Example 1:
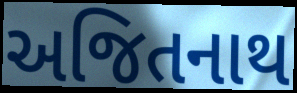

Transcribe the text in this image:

અજિતનાથ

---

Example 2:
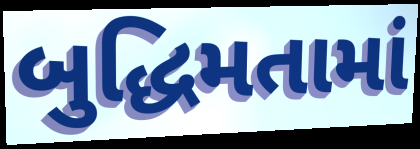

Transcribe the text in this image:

બુદ્ધિમતામાં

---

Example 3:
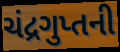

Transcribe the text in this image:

ચંદ્રગુપ્તની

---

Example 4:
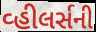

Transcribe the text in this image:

વ્હીલર્સની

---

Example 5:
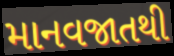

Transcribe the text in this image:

માનવજાતથી